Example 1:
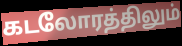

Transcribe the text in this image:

கடலோரத்திலும்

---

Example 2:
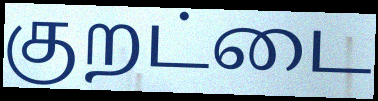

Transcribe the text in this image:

குறட்டை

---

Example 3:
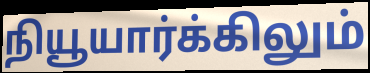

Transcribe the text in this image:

நியூயார்க்கிலும்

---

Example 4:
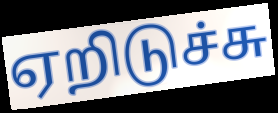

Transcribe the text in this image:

ஏறிடுச்சு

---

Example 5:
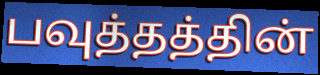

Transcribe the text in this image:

பவுத்தத்தின்